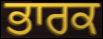
ਭਾਰਕ